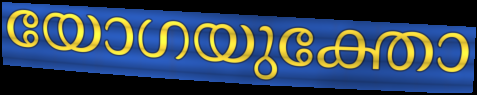
യോഗയുക്തോ